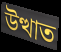
উত্থাত